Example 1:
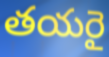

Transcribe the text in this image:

తయరై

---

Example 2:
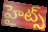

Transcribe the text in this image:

హైట్స్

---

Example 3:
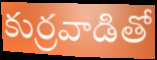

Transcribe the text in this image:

కుర్రవాడితో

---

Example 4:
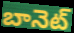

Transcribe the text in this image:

బానెట్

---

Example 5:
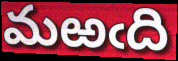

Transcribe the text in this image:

మఱఁది